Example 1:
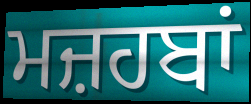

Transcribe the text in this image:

ਮਜ਼ਹਬਾਂ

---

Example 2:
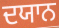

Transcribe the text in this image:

ਦਯਾਨ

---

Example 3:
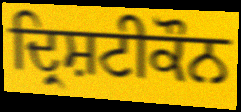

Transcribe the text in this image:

ਦ੍ਰਿਸ਼ਟੀਕੌਨ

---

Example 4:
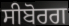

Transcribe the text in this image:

ਸੀਬੋਰਗ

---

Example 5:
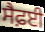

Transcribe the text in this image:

ਸੈਫ਼ਈ